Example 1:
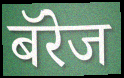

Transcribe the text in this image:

बॅरेज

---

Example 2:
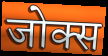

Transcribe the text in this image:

जोक्स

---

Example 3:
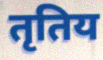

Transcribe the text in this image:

तृतिय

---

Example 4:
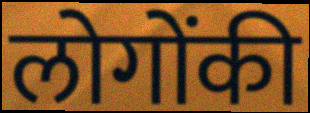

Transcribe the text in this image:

लोगोंकी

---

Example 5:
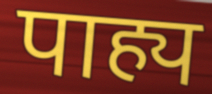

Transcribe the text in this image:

पाह्य